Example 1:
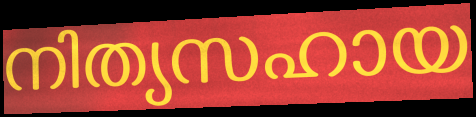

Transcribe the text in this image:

നിത്യസഹായ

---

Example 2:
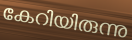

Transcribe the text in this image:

കേറിയിരുന്നു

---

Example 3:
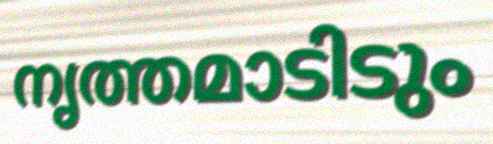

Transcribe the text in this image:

നൃത്തമാടിടും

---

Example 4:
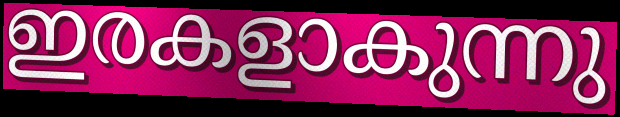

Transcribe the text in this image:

ഇരകളാകുന്നു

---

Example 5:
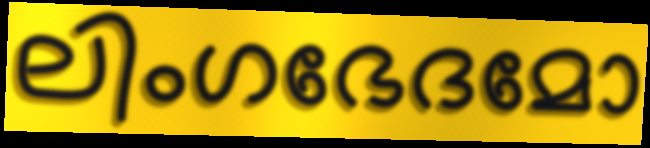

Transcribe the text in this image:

ലിംഗഭേദമോ